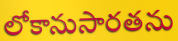
లోకానుసారతను